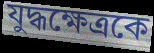
যুদ্ধক্ষেত্রকে